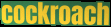
cockroach